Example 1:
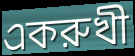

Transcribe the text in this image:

একরুখী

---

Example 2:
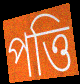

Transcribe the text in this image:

পত্তি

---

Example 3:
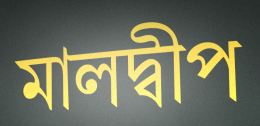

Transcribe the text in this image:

মালদ্বীপ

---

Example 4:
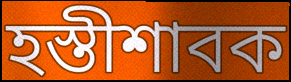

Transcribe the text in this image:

হস্তীশাবক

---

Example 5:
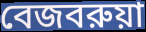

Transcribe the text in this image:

বেজবরুয়া